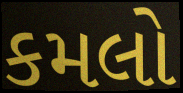
કમલો